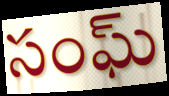
సంఘ్